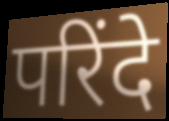
परिंदे